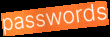
passwords